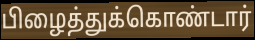
பிழைத்துக்கொண்டார்